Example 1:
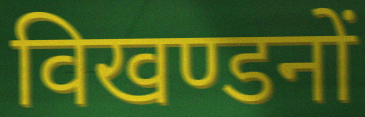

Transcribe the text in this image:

विखण्डनों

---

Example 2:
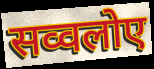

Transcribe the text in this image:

सव्वलोए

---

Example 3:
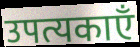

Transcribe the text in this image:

उपत्यकाएँ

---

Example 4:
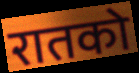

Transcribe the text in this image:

रातको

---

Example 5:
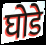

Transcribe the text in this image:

घोडे